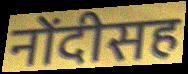
नोंदीसह